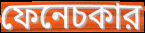
ফেনেচকার